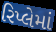
રિપ્લેમાં